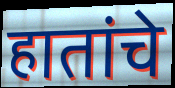
हातांचे